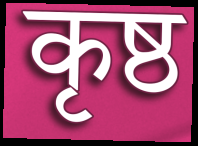
कृष्ठ